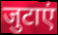
जुटाएं